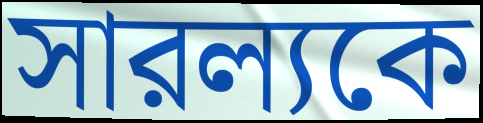
সারল্যকে